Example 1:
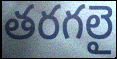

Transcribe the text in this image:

తరగలై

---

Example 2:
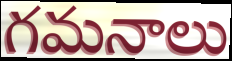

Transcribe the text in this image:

గమనాలు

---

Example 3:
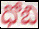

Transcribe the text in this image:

ధోబి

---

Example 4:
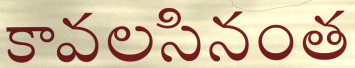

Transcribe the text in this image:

కావలసినంత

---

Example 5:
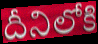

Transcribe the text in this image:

దీనిలోకి